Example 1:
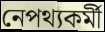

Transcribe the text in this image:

নেপথ্যকর্মী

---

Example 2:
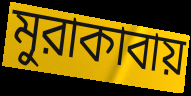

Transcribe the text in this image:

মুরাকাবায়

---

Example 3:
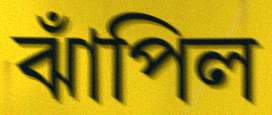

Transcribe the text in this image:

ঝাঁপিল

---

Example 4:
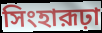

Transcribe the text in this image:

সিংহারূঢ়া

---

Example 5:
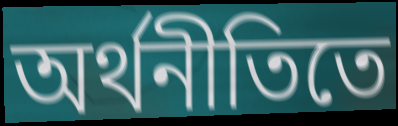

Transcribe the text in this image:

অর্থনীতিতে